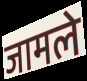
जामले